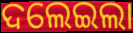
ଦଲେଇଲା